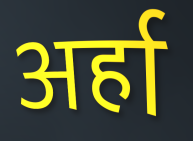
अर्हा